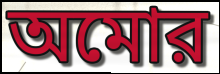
অমোর